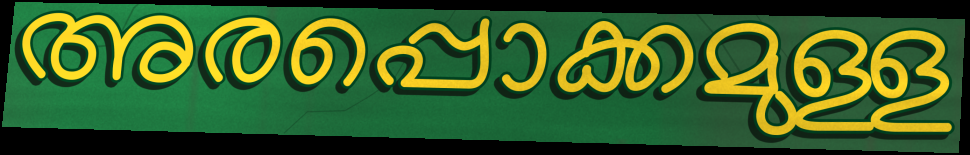
അരപ്പൊക്കമുള്ള